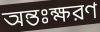
অন্তঃক্ষরণ